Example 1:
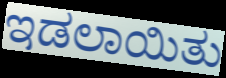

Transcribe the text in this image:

ಇಡಲಾಯಿತು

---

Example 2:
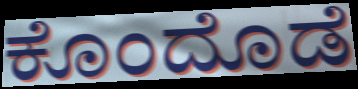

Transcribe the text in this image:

ಕೊಂದೊಡೆ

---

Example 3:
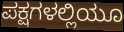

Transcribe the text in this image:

ಪಕ್ಷಗಳಲ್ಲಿಯೂ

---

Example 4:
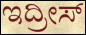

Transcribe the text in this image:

ಇದ್ರೀಸ್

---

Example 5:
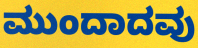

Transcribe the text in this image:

ಮುಂದಾದವು